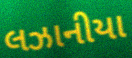
લઝાનીયા